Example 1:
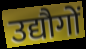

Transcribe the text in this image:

उद्यौगों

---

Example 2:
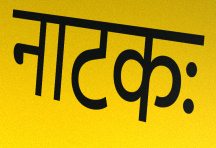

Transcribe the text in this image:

नाटकः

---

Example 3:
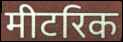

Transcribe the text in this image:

मीटरिक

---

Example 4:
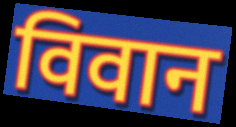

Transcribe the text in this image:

विवान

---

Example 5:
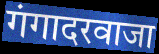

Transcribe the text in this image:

गंगादरवाजा